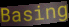
Basing